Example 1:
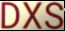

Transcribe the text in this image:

DXS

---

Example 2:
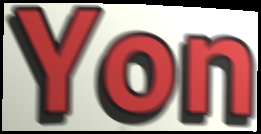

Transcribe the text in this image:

Yon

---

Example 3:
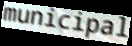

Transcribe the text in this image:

municipal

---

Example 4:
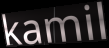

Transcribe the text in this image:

kamil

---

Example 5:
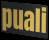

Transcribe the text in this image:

puali